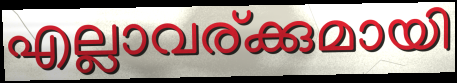
എല്ലാവര്ക്കുമായി